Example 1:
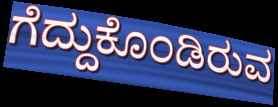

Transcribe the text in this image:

ಗೆದ್ದುಕೊಂಡಿರುವ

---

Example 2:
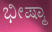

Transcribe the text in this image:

ಭೀಷ್ಮಾ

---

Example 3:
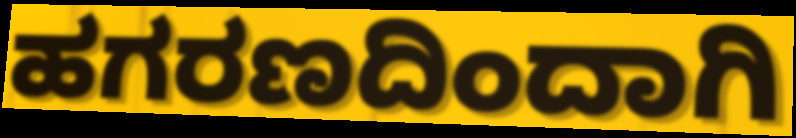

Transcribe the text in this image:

ಹಗರಣದಿಂದಾಗಿ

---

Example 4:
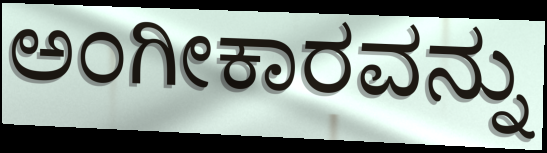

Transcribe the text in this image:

ಅಂಗೀಕಾರವನ್ನು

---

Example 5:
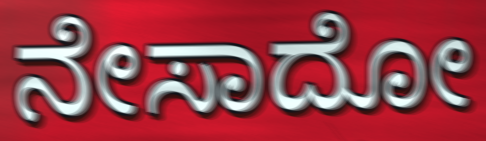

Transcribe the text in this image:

ನೇಸಾದೋ